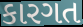
કારગત